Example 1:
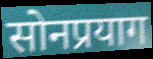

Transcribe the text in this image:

सोनप्रयाग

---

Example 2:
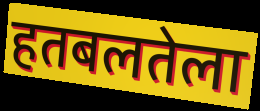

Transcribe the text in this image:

हतबलतेला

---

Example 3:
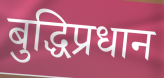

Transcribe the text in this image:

बुद्धिप्रधान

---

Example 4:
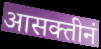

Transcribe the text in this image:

आसक्तीनं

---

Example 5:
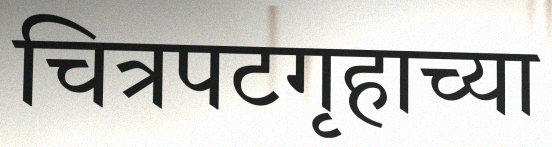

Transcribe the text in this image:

चित्रपटगृहाच्या